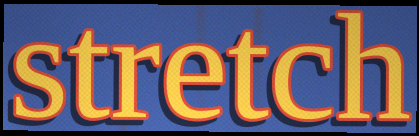
stretch